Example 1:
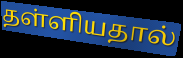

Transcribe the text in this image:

தள்ளியதால்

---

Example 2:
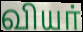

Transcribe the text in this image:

வியர்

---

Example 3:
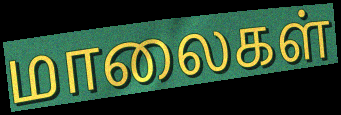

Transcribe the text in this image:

மாலைகள்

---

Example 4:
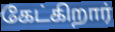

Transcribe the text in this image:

கேட்கிறார்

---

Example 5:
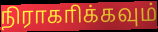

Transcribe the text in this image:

நிராகரிக்கவும்